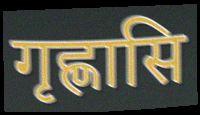
गृह्णासि